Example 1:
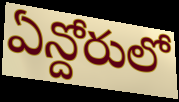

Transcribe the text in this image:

ఏన్దోరులో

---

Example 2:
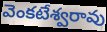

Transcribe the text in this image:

వెంకటేశ్వరావు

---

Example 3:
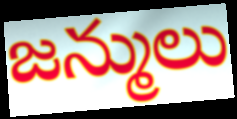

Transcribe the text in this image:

జన్ములు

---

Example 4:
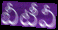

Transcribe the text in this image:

బీటీవీ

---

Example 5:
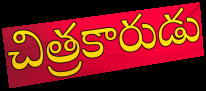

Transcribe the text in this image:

చిత్రకారుడు